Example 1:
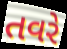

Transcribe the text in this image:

તવરે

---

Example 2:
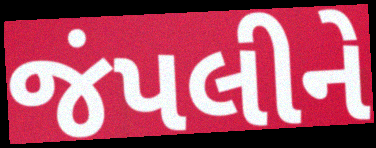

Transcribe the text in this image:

જંપલીને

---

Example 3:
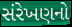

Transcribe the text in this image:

સંરેખણનો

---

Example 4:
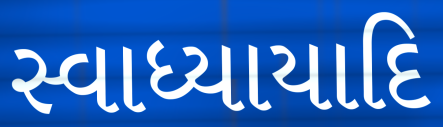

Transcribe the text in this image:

સ્વાધ્યાયાદિ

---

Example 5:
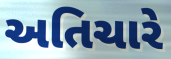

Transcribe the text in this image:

અતિચારે